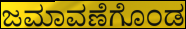
ಜಮಾವಣೆಗೊಂಡ